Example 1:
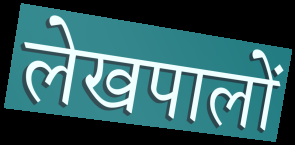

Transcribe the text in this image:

लेखपालों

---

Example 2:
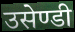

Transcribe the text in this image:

उसेण्डी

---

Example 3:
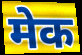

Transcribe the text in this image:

मेक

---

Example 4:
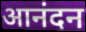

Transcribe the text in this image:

आनंदन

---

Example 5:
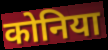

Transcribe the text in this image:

कोनिया